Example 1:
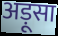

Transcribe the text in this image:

अड़ूसा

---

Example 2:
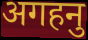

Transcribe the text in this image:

अगहनु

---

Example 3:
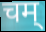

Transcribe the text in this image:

चम्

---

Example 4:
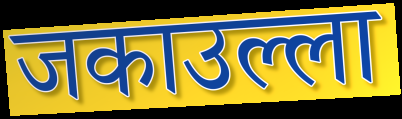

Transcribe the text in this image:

जकाउल्ला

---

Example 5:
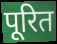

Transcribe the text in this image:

पूरित